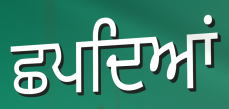
ਛਪਦਿਆਂ